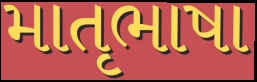
માતૃભાષા